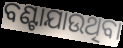
ବଣ୍ଟାଯାଉଥିବା